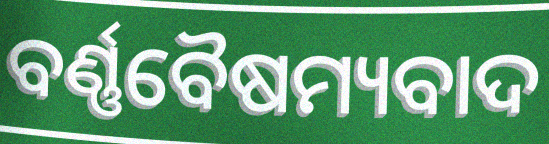
ବର୍ଣ୍ଣବୈଷମ୍ୟବାଦ